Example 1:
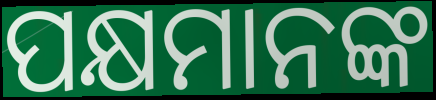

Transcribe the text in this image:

ପକ୍ଷମାନଙ୍କ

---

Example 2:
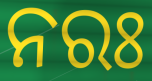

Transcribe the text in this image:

ନରଃ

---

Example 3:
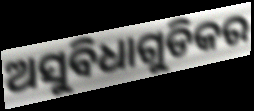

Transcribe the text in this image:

ଅସୁବିଧାଗୁଡିକର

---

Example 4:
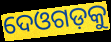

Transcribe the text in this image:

ଦେଓଗଡ଼କୁ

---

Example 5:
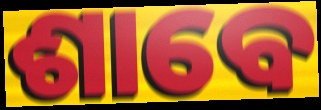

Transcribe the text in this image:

ଶାବେ